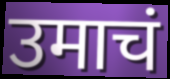
उमाचं